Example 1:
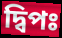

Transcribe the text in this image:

দ্বিপঃ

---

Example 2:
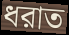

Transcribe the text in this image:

ধরাত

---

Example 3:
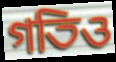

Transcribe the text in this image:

গতিও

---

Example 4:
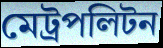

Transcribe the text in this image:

মেট্রপলিটন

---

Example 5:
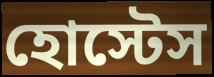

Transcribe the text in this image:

হোস্টেস